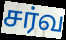
சர்வ